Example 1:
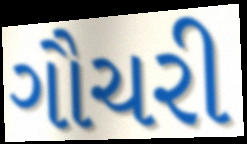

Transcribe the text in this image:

ગૌચરી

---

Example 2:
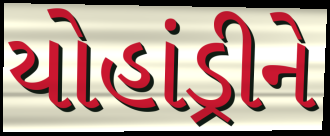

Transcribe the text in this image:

યોહાંડ્રીને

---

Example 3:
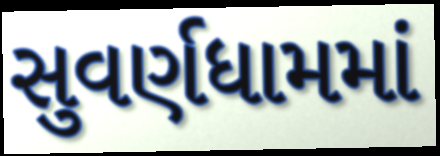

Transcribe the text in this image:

સુવર્ણધામમાં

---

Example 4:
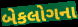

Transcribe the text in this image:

બેકલોગના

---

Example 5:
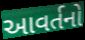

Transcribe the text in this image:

આવર્તનો